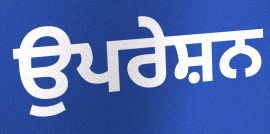
ਉਪਰੇਸ਼ਨ